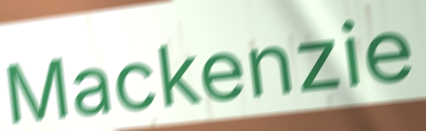
Mackenzie